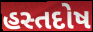
હસ્તદોષ